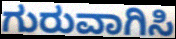
ಗುರುವಾಗಿಸಿ